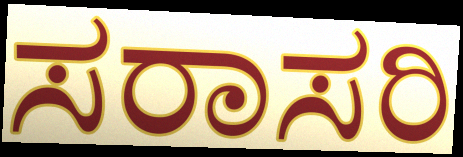
ಸರಾಸರಿ